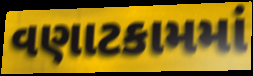
વણાટકામમાં